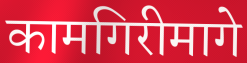
कामगिरीमागे